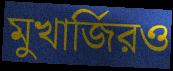
মুখার্জিরও